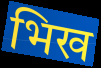
भिख